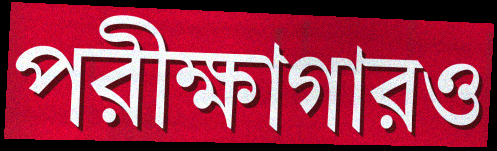
পরীক্ষাগারও